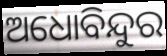
ଅଧୋବିନ୍ଦୁର